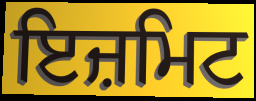
ਇਜ਼ਮਿਟ